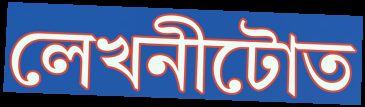
লেখনীটোত